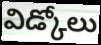
విడ్కోలు